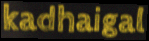
kadhaigal